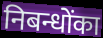
निबन्धोंका